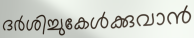
ദർശിച്ചുകേൾക്കുവാൻ